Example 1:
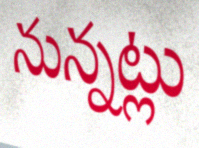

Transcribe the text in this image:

నున్నట్లు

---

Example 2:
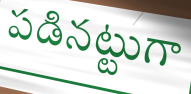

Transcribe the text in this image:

పడినట్టుగా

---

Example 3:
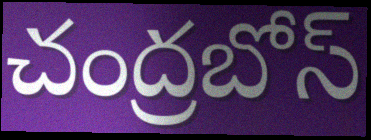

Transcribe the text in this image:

చంద్రబోస్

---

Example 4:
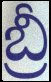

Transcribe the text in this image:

బ్రీ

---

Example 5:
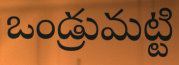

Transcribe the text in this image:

ఒండ్రుమట్టి